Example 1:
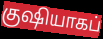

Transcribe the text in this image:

குஷியாகப்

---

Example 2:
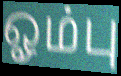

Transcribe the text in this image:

ஓம்பு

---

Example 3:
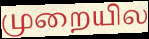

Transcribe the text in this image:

முறையில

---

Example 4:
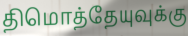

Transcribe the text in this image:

திமொத்தேயுவுக்கு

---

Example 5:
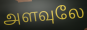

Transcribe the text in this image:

அளவுலே